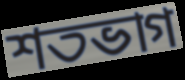
শতভাগ